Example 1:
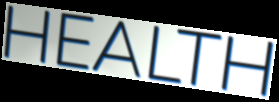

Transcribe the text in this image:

HEALTH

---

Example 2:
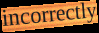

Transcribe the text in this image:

incorrectly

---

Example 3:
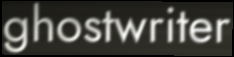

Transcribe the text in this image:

ghostwriter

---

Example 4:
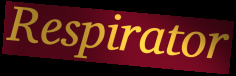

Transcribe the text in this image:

Respirator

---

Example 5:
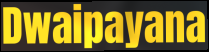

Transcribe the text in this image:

Dwaipayana